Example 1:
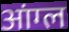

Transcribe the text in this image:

आंग्ल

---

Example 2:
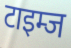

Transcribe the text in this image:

टाइम्ज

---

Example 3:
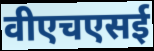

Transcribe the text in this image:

वीएचएसई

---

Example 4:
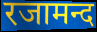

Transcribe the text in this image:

रजामन्द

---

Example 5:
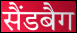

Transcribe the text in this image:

सैंडबैग